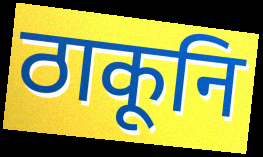
ठाकूनि